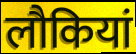
लौकियां